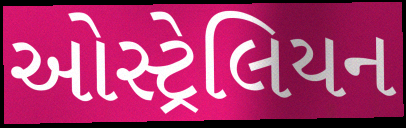
ઓસ્ટ્રેલિયન